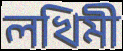
লখিমী